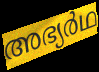
അഭ്യർഥ